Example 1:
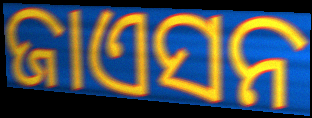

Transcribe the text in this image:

ଜାଏସନ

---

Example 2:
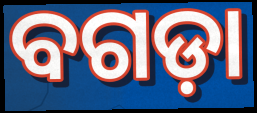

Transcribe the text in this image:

ବଗଡ଼ା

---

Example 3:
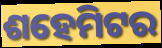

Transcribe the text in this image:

ଶହେମିଟର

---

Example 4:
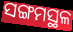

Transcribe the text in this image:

ସଙ୍ଗମସ୍ଥଳ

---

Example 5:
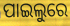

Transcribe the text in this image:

ପାଇଲୁରେ